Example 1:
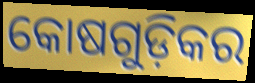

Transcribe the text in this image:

କୋଷଗୁଡ଼ିକର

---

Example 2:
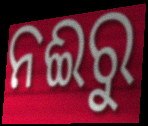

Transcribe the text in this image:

ନଈରୁ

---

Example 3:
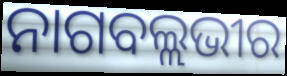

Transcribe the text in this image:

ନାଗବଲ୍ଲଭୀର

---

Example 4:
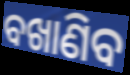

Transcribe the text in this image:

ବଖାଣିବ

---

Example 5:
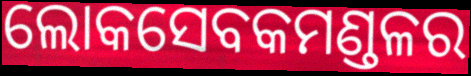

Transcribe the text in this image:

ଲୋକସେବକମଣ୍ଡଳର